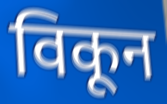
विकून